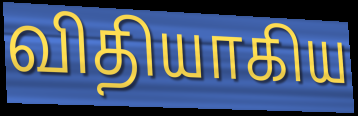
விதியாகிய